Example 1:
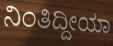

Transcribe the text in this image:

ನಿಂತಿದ್ದೀಯಾ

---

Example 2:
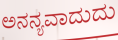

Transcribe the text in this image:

ಅನನ್ಯವಾದುದು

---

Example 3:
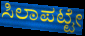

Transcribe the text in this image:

ಸಿಲಾಪಟ್ಟೇ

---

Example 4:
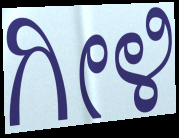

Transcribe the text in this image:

ಗೀಳಿ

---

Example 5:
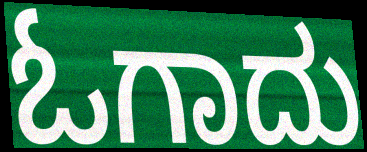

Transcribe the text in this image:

ಓಗಾದು